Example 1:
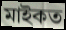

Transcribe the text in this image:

মাইকত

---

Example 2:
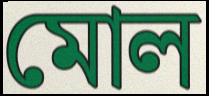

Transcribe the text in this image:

মোল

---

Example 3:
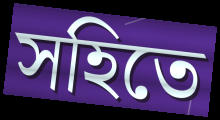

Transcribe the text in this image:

সহিতে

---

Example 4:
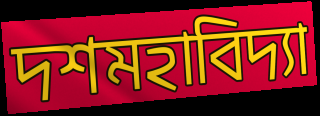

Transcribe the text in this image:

দশমহাবিদ্যা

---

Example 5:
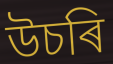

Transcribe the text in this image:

উচৰি